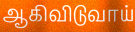
ஆகிவிடுவாய்